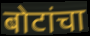
बोटांचा